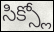
సిక్స్లో